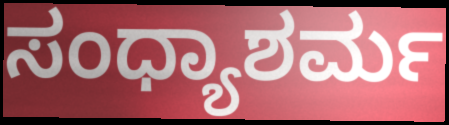
ಸಂಧ್ಯಾಶರ್ಮ